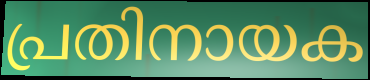
പ്രതിനായക